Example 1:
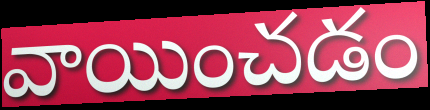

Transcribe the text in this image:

వాయించడం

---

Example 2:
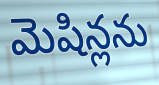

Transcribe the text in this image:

మెషిన్లను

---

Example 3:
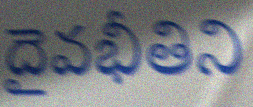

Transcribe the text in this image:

దైవభీతిని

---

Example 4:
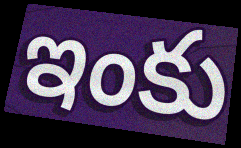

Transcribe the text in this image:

ఇంకు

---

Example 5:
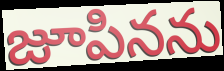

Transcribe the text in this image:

జూపినను